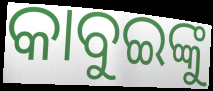
କାବୁଇଙ୍କୁ